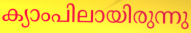
ക്യാംപിലായിരുന്നു